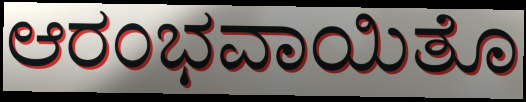
ಆರಂಭವಾಯಿತೊ